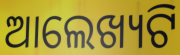
ଆଲେଖ୍ୟଟି